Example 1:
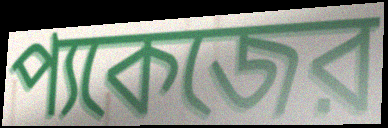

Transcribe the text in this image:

প্যকেজের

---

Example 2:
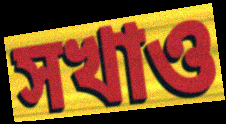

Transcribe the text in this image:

সখাও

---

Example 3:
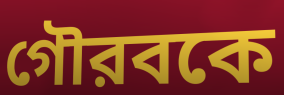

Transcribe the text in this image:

গৌরবকে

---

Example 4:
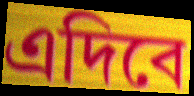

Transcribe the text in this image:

এদিবে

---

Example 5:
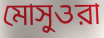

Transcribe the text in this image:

মোসুওরা